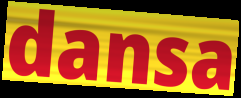
dansa